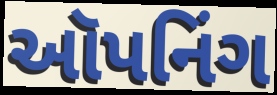
ઑપનિંગ